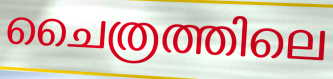
ചൈത്രത്തിലെ